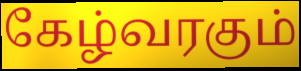
கேழ்வரகும்